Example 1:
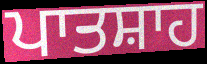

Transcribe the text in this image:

ਪਾਤਸ਼ਾਹ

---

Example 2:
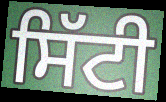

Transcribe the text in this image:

ਸਿੱਟੀ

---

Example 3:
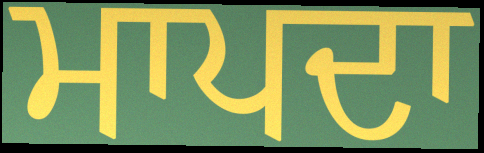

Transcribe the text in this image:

ਮਾਪਦਾ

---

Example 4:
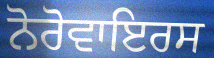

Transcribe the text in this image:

ਨੋਰੋਵਾਇਰਸ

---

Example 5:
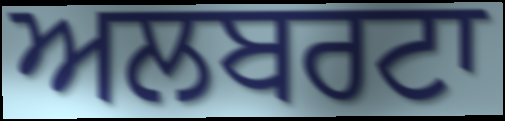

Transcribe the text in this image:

ਅਲਬਰਟਾ